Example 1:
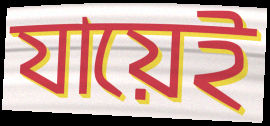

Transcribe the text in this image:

যায়েই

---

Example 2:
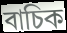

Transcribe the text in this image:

বাচিক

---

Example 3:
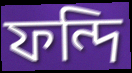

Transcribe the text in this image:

ফন্দি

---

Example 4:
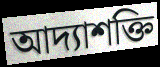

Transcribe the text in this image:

আদ্যাশক্তি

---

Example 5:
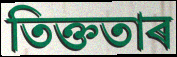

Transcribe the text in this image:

তিক্ততাৰ